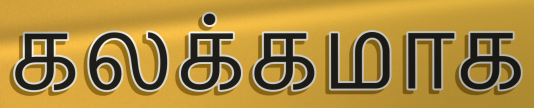
கலக்கமாக